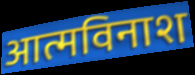
आत्मविनाश